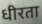
धीरता